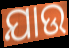
ଯାଉ